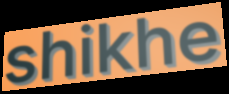
shikhe